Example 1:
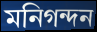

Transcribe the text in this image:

মনিগন্দন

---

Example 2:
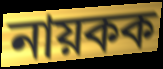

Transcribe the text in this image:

নায়কক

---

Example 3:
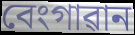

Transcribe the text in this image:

বেংগাৱান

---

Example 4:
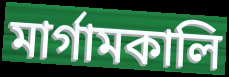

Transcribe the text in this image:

মাৰ্গামকালি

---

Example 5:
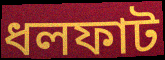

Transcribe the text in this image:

ধলফাট